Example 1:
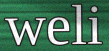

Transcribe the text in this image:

weli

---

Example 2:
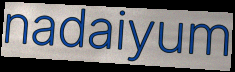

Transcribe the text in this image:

nadaiyum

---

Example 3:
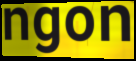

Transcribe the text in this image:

ngon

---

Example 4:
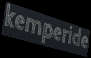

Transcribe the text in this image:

kemperide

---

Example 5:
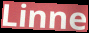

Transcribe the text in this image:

Linne